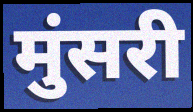
मुंसरी